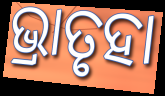
ଭ୍ରାତୃହା